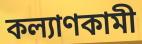
কল্যাণকামী